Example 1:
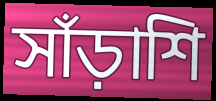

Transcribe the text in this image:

সাঁড়াশি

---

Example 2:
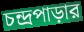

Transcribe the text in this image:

চন্দ্রপাড়ার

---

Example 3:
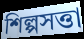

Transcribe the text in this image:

শিল্পসত্তা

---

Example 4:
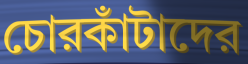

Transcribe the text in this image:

চোরকাঁটাদের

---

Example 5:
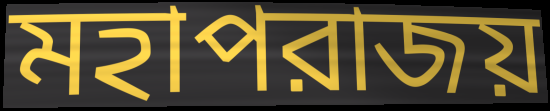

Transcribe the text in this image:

মহাপরাজয়